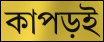
কাপড়ই